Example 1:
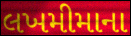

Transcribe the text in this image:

લખમીમાના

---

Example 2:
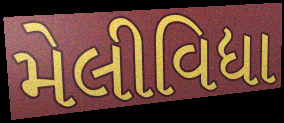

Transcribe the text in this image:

મેલીવિદ્યા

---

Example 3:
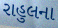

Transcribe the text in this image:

રાહુલના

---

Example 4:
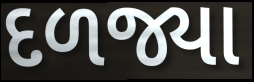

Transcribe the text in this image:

દળજ્યા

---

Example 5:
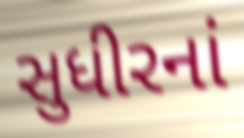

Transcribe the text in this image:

સુધીરનાં